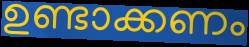
ഉണ്ടാക്കണം